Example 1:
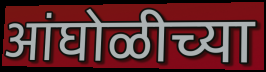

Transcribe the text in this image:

आंघोळीच्या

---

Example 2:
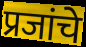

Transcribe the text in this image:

प्रजांचे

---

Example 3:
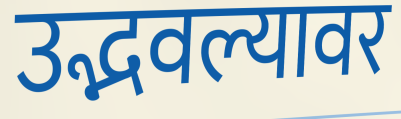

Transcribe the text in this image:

उद्भवल्यावर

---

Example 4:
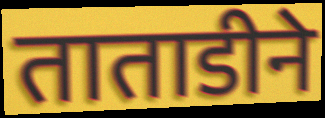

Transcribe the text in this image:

ताताडीने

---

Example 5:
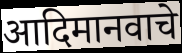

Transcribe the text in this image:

आदिमानवाचे